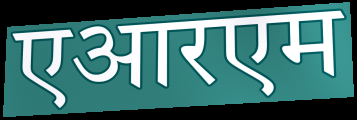
एआरएम